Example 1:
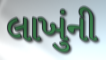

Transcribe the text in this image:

લાખુંની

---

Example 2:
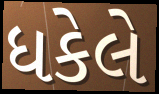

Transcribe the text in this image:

ધકેલે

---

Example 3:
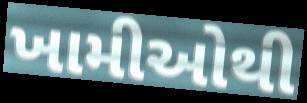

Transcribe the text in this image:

ખામીઓથી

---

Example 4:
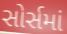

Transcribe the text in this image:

સોર્સમાં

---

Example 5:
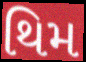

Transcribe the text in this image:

થિમ